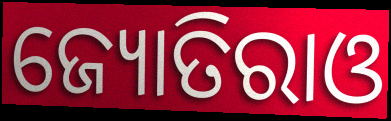
ଜ୍ୟୋତିରାଓ